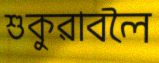
শুকুৱাবলৈ